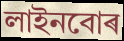
লাইনবোৰ